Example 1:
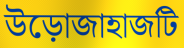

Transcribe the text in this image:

উড়োজাহাজটি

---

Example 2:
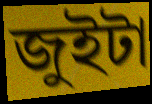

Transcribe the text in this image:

জুইটা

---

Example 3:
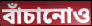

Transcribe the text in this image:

বাঁচানোও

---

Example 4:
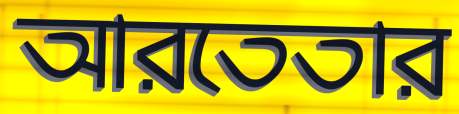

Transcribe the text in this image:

আরতেতার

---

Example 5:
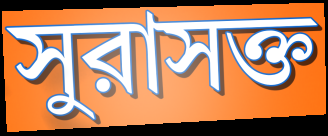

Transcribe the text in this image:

সুরাসক্ত